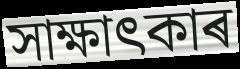
সাক্ষাৎকাৰ